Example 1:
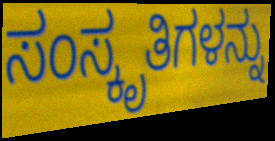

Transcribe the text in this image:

ಸಂಸ್ಕೃತಿಗಳನ್ನು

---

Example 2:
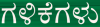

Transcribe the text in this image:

ಗಳಿಕೆಗಳು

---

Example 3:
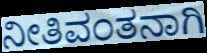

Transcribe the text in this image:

ನೀತಿವಂತನಾಗಿ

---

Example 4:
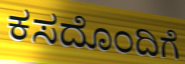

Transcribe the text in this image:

ಕಸದೊಂದಿಗೆ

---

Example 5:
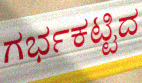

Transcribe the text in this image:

ಗರ್ಭಕಟ್ಟಿದ